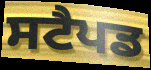
ਸਟੈਪਡ